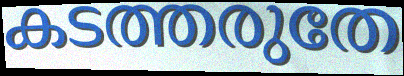
കടത്തരുതേ